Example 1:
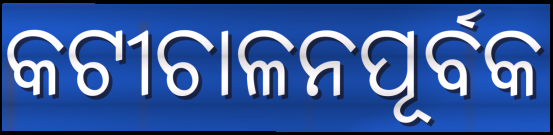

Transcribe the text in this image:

କଟୀଚାଳନପୂର୍ବକ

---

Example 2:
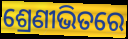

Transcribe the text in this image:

ଶ୍ରେଣୀଭିତରେ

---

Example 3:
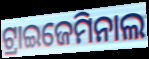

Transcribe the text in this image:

ଟ୍ରାଇଜେମିନାଲ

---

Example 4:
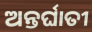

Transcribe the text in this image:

ଅନ୍ତର୍ଘାତୀ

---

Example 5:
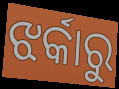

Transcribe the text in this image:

ଝର୍କାରୁ